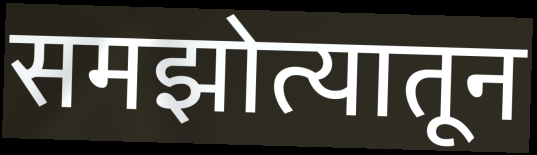
समझोत्यातून